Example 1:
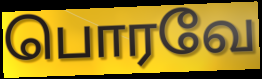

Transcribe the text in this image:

பொரவே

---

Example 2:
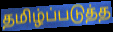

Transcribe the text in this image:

தமிழ்ப்படுத்த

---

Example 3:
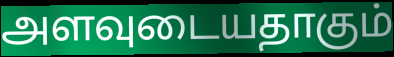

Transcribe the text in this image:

அளவுடையதாகும்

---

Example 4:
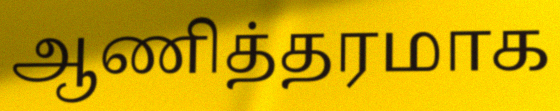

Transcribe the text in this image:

ஆணித்தரமாக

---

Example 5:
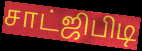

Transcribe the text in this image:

சாட்ஜிபிடி